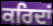
ਕਰਿਦਾਂ